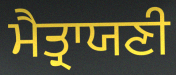
ਮੈਤ੍ਰਾਯਣੀ